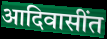
आदिवासींत